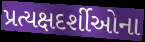
પ્રત્યક્ષદર્શીઓના